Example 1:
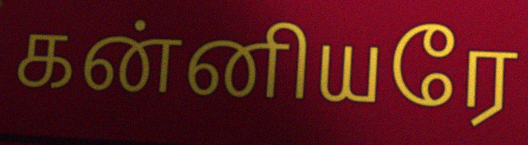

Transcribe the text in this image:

கன்னியரே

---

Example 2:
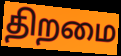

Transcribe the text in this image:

திறமை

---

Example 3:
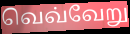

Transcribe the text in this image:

வெவ்வேறு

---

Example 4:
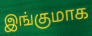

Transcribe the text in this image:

இங்குமாக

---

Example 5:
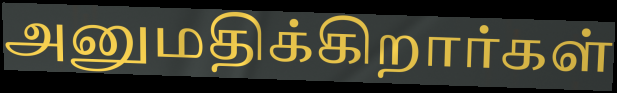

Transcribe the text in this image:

அனுமதிக்கிறார்கள்